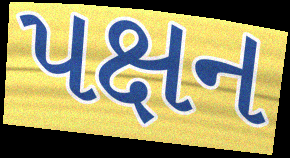
પક્ષન